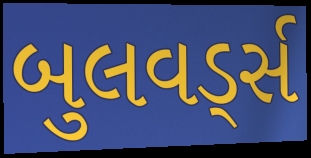
બુલવર્ડ્સ